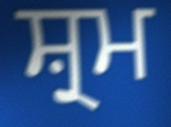
ਸ਼੍ਰਮ